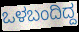
ಒಳಬಂದಿದ್ದ